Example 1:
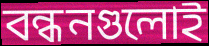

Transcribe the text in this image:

বন্ধনগুলোই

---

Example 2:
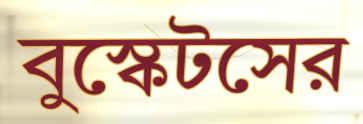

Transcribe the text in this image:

বুস্কেটসের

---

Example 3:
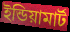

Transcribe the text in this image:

ইন্ডিয়ামার্ট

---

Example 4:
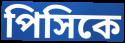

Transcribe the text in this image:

পিসিকে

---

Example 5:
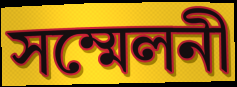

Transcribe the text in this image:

সম্মেলনী